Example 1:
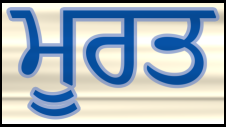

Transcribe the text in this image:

ਮੂਰਤ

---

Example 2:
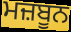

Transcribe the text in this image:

ਮਜ਼ਬੂਨ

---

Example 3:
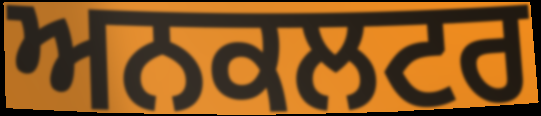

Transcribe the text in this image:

ਅਨਕਲਟਰ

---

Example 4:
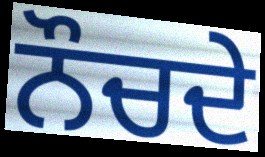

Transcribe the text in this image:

ਨੌਚਦੇ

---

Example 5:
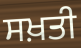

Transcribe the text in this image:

ਸਖ਼ਤੀ